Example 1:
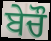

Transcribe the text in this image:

ਬੇਚੌ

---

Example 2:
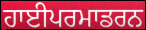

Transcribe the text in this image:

ਹਾਈਪਰਮਾਡਰਨ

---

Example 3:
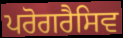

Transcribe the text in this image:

ਪਰੋਗਰੈਸਿਵ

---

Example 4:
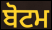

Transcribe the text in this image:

ਬੋਟਮ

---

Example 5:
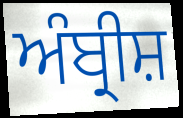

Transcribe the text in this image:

ਅੰਬ੍ਰੀਸ਼